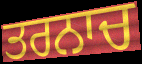
ਤਰਨਾਚ